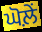
ਘੋਲ਼ੇਂ